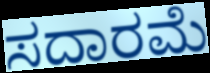
ಸದಾರಮೆ